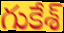
గుకేశ్